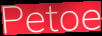
Petoe